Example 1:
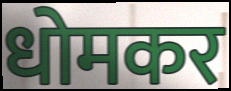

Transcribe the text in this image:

धोमकर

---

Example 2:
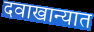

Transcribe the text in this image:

दवाखान्यात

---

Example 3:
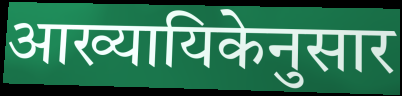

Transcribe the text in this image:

आख्यायिकेनुसार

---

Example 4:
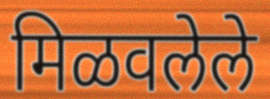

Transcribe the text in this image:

मिळवलेले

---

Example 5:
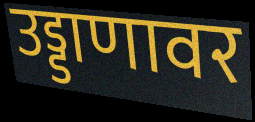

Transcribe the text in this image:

उड्डाणावर